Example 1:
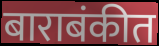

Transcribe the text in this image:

बाराबंकीत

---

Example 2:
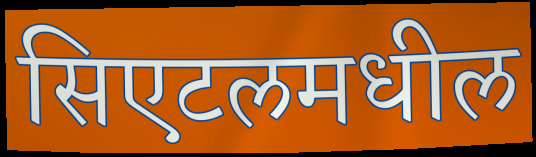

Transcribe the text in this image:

सिएटलमधील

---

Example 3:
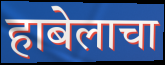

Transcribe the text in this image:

हाबेलाचा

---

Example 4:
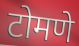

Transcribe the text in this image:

टोमणे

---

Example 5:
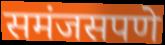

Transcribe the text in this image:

समंजसपणे